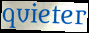
quieter